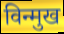
विन्मुख